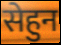
सेहुन